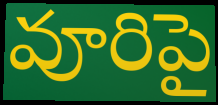
వూరిపై